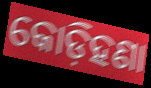
କୋଡ଼ିହଣା